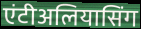
एंटीअलियासिंग